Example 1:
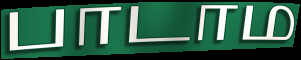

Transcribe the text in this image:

பாடாம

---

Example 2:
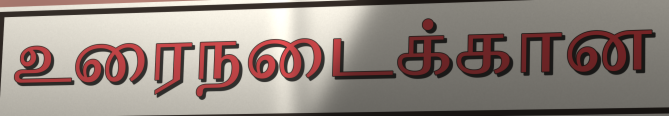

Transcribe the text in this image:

உரைநடைக்கான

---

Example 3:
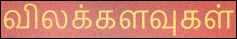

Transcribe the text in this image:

விலக்களவுகள்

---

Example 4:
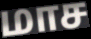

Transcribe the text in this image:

மாச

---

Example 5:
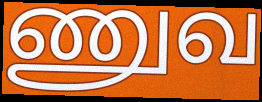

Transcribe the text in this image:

ணுவ